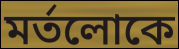
মর্তলোকে